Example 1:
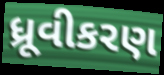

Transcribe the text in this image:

ધ્રૂવીકરણ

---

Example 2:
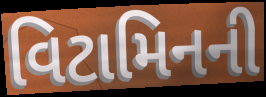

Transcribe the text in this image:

વિટામિનની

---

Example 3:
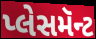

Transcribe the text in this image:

પ્લેસમૅન્ટ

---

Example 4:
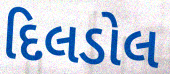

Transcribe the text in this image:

દિલડોલ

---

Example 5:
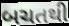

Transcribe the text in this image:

બચતથી